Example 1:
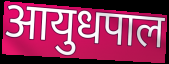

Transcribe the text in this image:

आयुधपाल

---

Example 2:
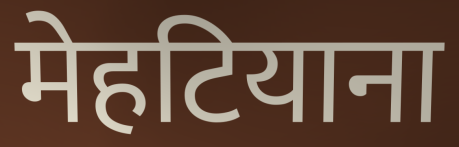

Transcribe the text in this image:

मेहटियाना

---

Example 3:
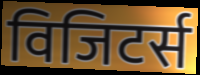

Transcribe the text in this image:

विजिटर्स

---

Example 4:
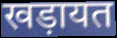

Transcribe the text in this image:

खड़ायत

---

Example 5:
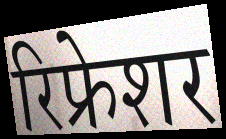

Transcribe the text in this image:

रिफ्रेशर